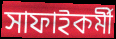
সাফাইকর্মী